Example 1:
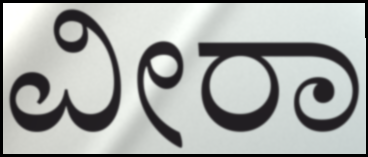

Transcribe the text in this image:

ವೀರಾ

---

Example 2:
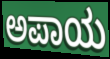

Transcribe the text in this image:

ಅಪಾಯ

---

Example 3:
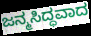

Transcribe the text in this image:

ಜನ್ಮಸಿದ್ಧವಾದ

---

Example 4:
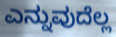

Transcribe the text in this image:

ಎನ್ನುವುದೆಲ್ಲ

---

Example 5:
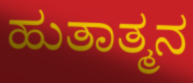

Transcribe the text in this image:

ಹುತಾತ್ಮನ